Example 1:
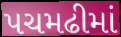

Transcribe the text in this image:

પચમઢીમાં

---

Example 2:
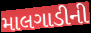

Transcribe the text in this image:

માલગાડીની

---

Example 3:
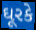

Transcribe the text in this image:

ઘૂરકે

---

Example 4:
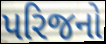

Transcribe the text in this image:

પરિજનો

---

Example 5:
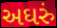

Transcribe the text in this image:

અઘરું